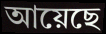
আয়েছে